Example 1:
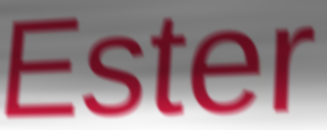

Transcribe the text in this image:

Ester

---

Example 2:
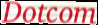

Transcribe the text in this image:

Dotcom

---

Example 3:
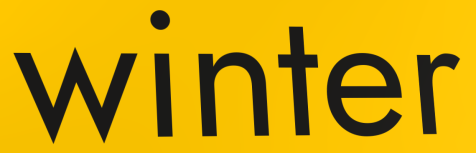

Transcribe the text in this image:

winter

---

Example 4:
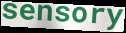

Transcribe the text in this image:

sensory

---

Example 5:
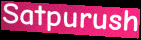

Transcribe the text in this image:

Satpurush